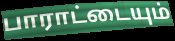
பாராட்டையும்